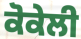
ਕੋਕੇਲੀ